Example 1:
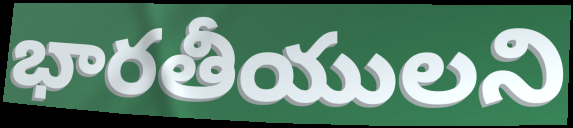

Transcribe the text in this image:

భారతీయులని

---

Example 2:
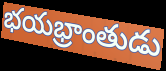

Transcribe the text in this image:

భయభ్రాంతుడు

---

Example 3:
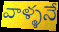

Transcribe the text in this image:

వాళ్ళనే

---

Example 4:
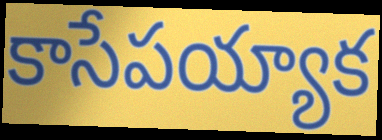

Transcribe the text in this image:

కాసేపయ్యాక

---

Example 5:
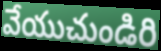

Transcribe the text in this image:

వేయుచుండిరి